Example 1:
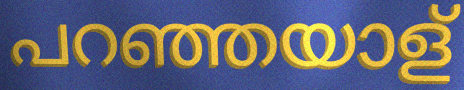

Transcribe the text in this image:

പറഞ്ഞയാള്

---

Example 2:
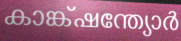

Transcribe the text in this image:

കാങ്ക്ഷന്ത്യോർ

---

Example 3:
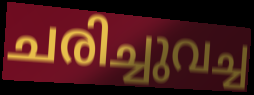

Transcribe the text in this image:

ചരിച്ചുവച്ച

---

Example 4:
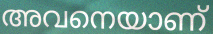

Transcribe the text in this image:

അവനെയാണ്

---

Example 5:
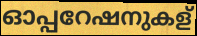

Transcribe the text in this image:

ഓപ്പറേഷനുകള്